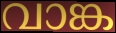
വാങ്ക